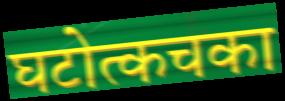
घटोत्कचका